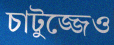
চাটুজ্জেও